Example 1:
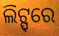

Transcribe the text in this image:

ଲିଟ୍ସ୍‌ରେ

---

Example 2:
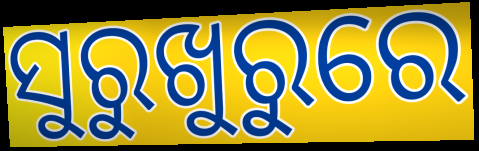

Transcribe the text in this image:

ସୁରୁଖୁରୁରେ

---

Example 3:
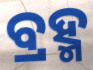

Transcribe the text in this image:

ବ୍ରହ୍ମ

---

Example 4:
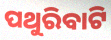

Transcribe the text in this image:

ପଥୁରିବାଟି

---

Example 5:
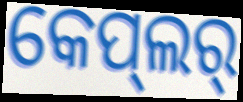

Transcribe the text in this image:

କେପ୍‌ଲର୍